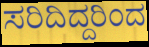
ಸರಿದಿದ್ದರಿಂದ